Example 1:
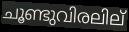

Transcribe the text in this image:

ചൂണ്ടുവിരലില്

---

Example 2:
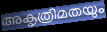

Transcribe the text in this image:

അകൃത്രിമതയും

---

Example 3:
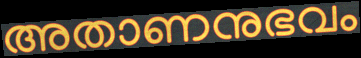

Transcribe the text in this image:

അതാണനുഭവം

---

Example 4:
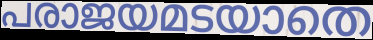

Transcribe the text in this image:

പരാജയമടയാതെ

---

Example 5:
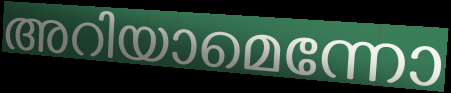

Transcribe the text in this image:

അറിയാമെന്നോ